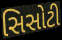
સિસોટી